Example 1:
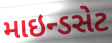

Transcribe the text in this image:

માઇન્ડસેટ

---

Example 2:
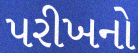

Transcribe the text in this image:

પરીખનો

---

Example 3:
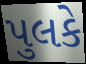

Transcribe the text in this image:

પુલકે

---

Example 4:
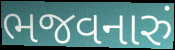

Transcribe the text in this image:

ભજવનારું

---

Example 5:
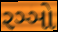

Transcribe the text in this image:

રઞ્ઞો